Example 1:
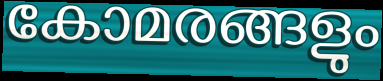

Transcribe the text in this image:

കോമരങ്ങളും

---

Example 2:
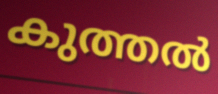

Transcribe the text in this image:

കുത്തൽ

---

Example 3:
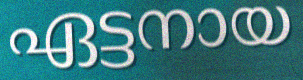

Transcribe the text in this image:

ഏട്ടനായ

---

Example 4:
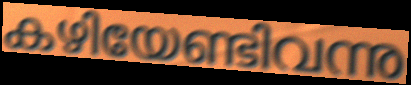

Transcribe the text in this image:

കഴിയേണ്ടിവന്നു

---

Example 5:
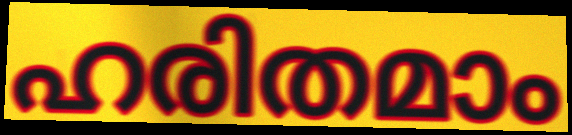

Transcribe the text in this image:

ഹരിതമാം